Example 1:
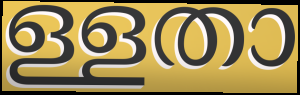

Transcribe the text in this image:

ള്ളതാ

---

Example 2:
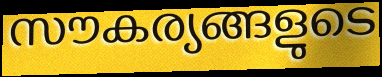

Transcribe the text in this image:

സൗകര്യങ്ങളുടെ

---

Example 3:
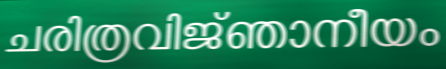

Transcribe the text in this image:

ചരിത്രവിജ്‌ഞാനീയം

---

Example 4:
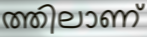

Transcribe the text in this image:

ത്തിലാണ്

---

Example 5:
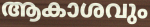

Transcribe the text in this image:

ആകാശവും